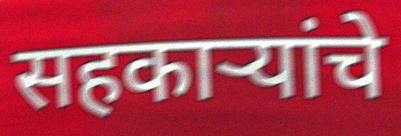
सहकाऱ्यांचे